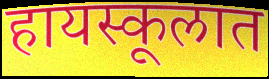
हायस्कूलात